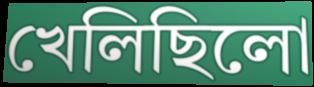
খেলিছিলো